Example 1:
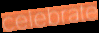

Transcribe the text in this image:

celebrate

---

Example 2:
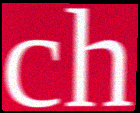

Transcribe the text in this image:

ch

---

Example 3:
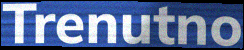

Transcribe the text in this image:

Trenutno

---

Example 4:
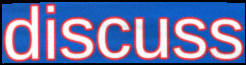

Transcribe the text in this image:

discuss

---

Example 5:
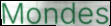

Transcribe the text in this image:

Mondes